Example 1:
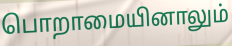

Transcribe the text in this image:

பொறாமையினாலும்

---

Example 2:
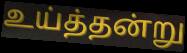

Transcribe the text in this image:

உய்த்தன்று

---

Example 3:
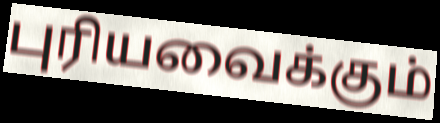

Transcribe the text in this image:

புரியவைக்கும்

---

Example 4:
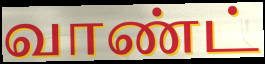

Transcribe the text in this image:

வாண்ட்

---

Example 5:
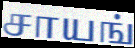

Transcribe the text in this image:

சாயங்